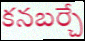
కనబర్చే